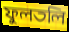
ফুলতলি